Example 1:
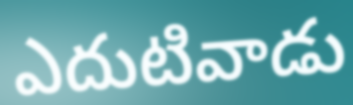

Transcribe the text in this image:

ఎదుటివాడు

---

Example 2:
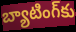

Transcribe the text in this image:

బ్యాటింగ్‌కు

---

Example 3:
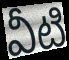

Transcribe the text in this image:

వీటి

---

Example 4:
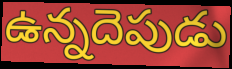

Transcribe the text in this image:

ఉన్నదెపుడు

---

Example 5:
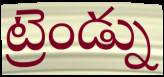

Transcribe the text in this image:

ట్రెండ్ను